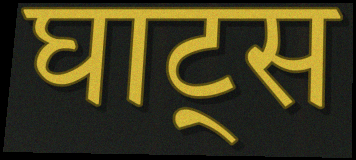
घाट्स